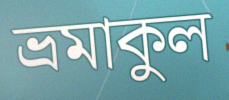
ভ্রমাকুল